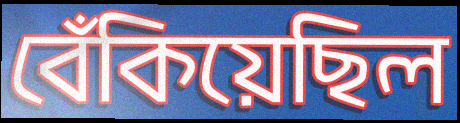
বেঁকিয়েছিল